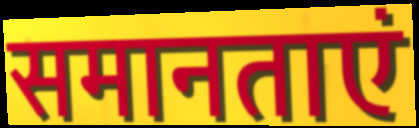
समानताएं